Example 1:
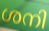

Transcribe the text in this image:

ശനി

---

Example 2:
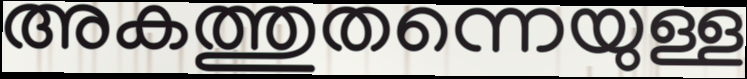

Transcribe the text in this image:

അകത്തുതന്നെയുള്ള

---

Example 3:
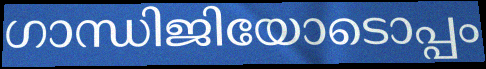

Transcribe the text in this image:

ഗാന്ധിജിയോടൊപ്പം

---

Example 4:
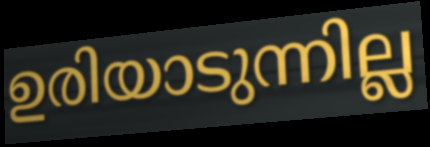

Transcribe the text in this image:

ഉരിയാടുന്നില്ല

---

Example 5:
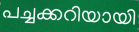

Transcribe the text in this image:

പച്ചക്കറിയായി